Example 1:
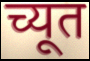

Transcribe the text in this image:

च्यूत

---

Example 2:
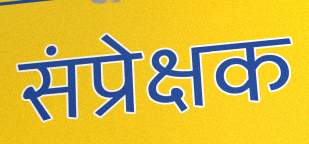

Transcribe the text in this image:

संप्रेक्षक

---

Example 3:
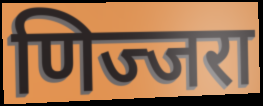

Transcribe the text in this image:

णिज्जरा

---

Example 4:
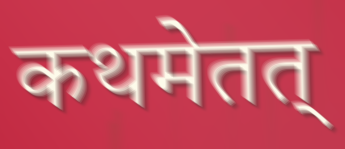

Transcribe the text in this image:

कथमेतत्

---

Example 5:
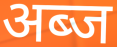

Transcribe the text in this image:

अब्ज